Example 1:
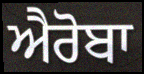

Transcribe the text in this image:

ਐਰੋਬਾ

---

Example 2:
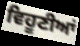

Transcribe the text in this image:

ਵਿਹੂਣੀਆਂ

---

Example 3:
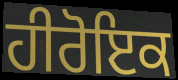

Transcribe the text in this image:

ਹੀਰੋਇਕ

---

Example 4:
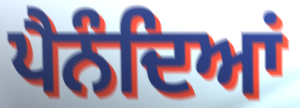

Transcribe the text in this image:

ਪੈਨੰਦਿਆਂ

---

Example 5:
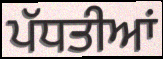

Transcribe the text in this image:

ਪੱਧਤੀਆਂ